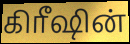
கிரீஷின்